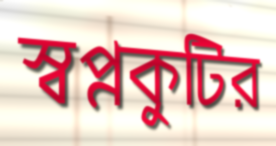
স্বপ্নকুটির